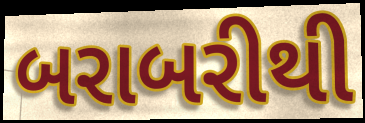
બરાબરીથી